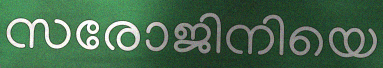
സരോജിനിയെ